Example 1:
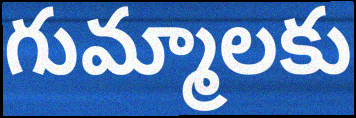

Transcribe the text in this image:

గుమ్మాలకు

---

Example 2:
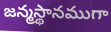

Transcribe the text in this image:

జన్మస్థానముగా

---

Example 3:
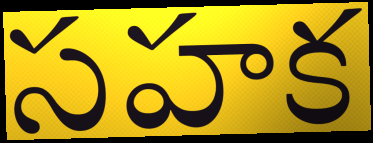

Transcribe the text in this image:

సహక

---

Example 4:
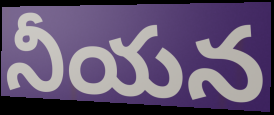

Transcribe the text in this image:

నీయన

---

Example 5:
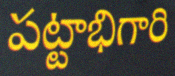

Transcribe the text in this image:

పట్టాభిగారి